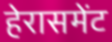
हेरासमेंट